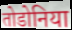
तोडोनिया